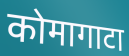
कोमागाटा